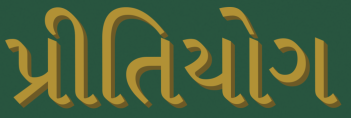
પ્રીતિયોગ